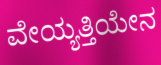
ವೇಯ್ಯತ್ತಿಯೇನ